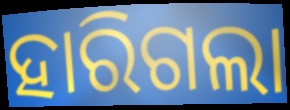
ହାରିଗଲା